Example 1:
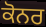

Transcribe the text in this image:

ਕੋਨਰ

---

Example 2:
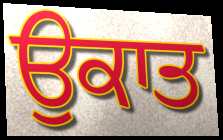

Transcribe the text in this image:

ਉਕਾਤ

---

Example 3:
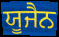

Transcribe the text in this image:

ਯੂਜੈਨ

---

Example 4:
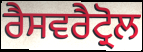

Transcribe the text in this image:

ਰੈਸਵਰੈਟ੍ਰੋਲ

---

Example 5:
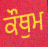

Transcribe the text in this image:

ਕੌਥੁਮ